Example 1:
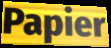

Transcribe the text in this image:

Papier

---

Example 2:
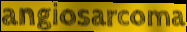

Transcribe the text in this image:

angiosarcoma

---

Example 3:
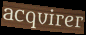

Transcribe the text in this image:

acquirer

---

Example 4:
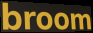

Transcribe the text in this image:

broom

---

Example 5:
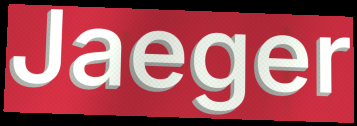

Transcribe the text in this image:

Jaeger